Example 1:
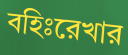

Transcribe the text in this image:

বহিঃরেখার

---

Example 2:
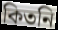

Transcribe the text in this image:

কিতনি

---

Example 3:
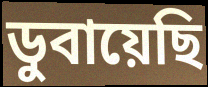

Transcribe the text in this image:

ডুবায়েছি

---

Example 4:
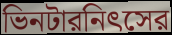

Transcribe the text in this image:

ভিনটারনিৎসের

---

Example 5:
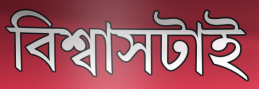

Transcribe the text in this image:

বিশ্বাসটাই